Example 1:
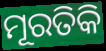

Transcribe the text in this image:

ମୂରତିକି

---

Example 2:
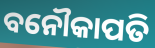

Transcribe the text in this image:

ବନୌକାପତି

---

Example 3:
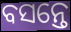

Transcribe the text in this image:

ବସନ୍ତେ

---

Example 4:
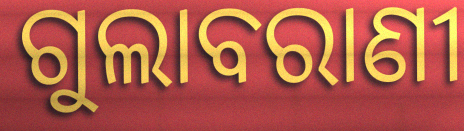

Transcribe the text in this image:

ଗୁଲାବରାଣୀ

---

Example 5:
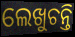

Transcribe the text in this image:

ଲେଖୁଚନ୍ତି